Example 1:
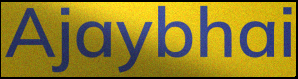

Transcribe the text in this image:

Ajaybhai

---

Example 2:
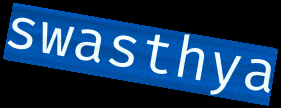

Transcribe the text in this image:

swasthya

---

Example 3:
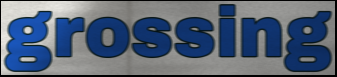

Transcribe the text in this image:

grossing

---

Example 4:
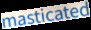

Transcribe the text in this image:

masticated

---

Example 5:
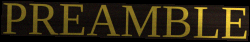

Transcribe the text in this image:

PREAMBLE